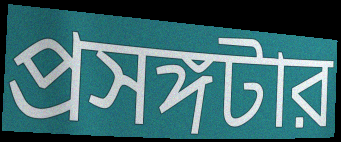
প্রসঙ্গটার